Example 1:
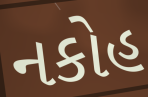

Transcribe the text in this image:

નકોહ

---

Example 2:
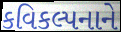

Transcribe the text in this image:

કવિકલ્પનાને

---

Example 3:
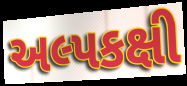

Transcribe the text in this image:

અલ્પકક્ષી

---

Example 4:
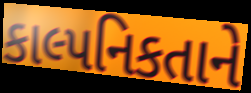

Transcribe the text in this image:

કાલ્પનિકતાને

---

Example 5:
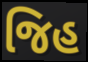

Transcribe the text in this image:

જિહ